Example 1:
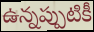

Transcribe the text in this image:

ఉన్నప్పుటికీ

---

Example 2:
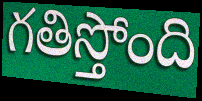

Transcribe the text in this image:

గతిస్తోంది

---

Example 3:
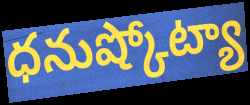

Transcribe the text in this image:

ధనుష్కోట్యా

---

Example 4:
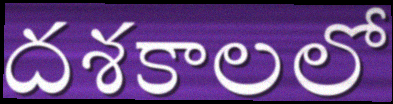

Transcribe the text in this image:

దశకాలలో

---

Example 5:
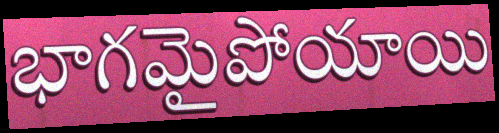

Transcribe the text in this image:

భాగమైపోయాయి